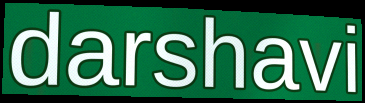
darshavi